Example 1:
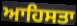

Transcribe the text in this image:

ਆਹਿਸਤਾ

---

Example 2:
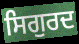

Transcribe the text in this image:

ਸਿਗੁਰਦ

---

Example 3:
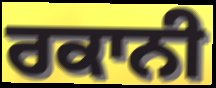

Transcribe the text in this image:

ਰਕਾਨੀ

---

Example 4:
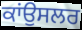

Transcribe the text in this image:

ਕਾਂਉਸਲਰ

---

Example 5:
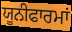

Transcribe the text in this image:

ਯੂਨੀਫਾਰਮਾਂ